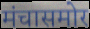
मंचासमोर